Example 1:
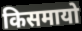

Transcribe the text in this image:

किसमायो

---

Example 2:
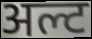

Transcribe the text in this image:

अल्ट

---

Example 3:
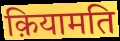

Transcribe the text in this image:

क़ियामति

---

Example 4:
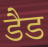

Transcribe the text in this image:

डैड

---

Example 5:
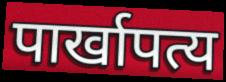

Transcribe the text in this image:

पार्खापत्य